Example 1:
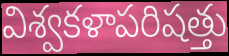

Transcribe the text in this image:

విశ్వకళాపరిషత్తు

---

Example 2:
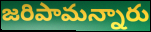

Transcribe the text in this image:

జరిపామన్నారు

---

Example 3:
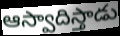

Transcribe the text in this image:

ఆస్వాదిస్తాడు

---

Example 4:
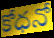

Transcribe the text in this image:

కోధనో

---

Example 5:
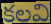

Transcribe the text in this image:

కలవి